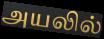
அயலில்